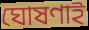
ঘোষণাই